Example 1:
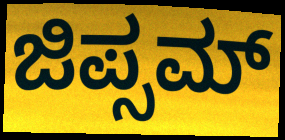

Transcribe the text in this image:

ಜಿಪ್ಸಮ್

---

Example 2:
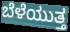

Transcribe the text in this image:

ಬೆಳೆಯುತ್ತ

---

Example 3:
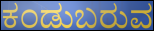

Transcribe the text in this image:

ಕಂಡುಬರುವ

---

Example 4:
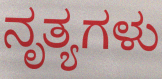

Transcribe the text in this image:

ನೃತ್ಯಗಳು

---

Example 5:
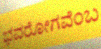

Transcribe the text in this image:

ಭವರೋಗವೆಂಬ